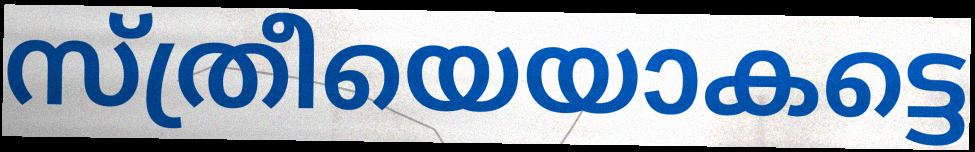
സ്ത്രീയെയാകട്ടെ